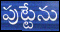
పుట్టేను